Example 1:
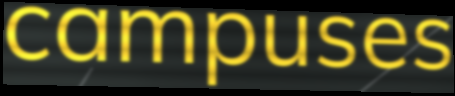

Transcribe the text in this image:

campuses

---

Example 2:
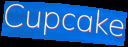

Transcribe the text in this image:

Cupcake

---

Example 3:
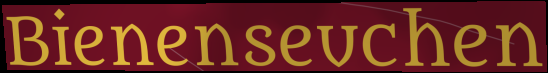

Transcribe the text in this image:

Bienenseuchen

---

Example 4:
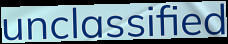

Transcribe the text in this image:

unclassified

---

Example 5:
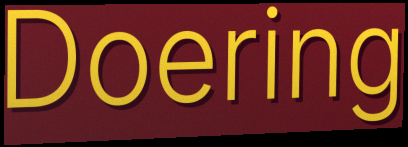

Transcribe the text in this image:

Doering